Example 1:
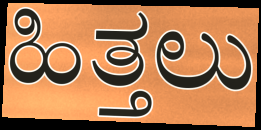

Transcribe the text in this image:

ಹಿತ್ತಲು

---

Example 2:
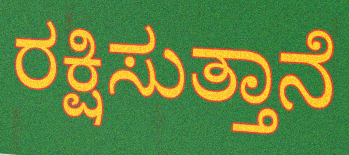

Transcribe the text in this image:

ರಕ್ಷಿಸುತ್ತಾನೆ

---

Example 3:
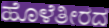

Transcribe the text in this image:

ಹೊಳೆತೀರದ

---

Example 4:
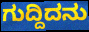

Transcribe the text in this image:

ಗುದ್ದಿದನು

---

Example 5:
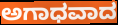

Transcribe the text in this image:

ಅಗಾಧವಾದ